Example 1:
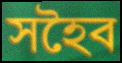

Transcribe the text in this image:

সহৈব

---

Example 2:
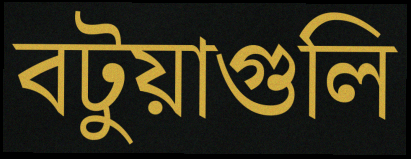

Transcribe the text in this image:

বটুয়াগুলি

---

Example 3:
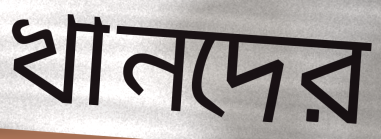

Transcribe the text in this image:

খানদের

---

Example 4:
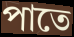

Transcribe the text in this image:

পাতে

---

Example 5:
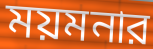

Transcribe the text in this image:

ময়মনার